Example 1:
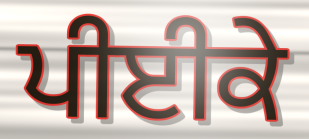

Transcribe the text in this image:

ਪੀਈਕੇ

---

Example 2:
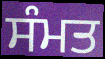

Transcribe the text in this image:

ਸੰਮਤ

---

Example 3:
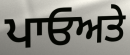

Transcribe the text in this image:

ਪਾਓਅਤੇ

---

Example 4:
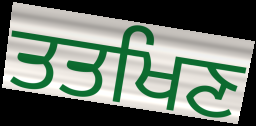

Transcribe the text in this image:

ਤਤਖਿਣ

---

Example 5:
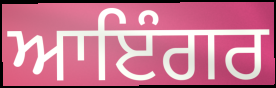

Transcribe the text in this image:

ਆਇੰਗਰ